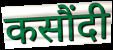
कसौंदी